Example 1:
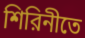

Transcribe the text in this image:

শিরিনীতে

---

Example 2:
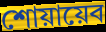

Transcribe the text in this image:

শোয়ায়েব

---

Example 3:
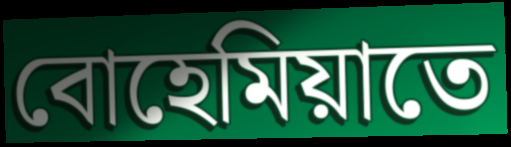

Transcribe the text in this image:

বোহেমিয়াতে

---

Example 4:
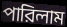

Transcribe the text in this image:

পারিলাম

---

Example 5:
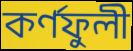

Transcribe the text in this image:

কর্ণফুলী